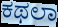
ಕಥಲಾ